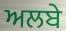
ਅਲਬੇ